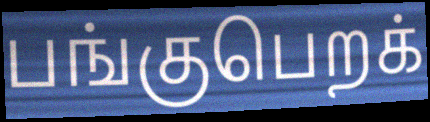
பங்குபெறக்